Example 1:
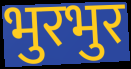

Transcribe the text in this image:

भुरभुर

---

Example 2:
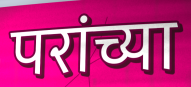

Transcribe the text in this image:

परांच्या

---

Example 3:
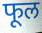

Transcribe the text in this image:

फूल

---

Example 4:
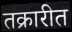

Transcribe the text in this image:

तक्रारीत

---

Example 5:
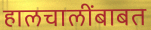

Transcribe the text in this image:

हालचालींबाबत